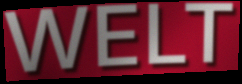
WELT